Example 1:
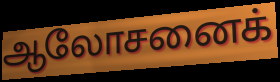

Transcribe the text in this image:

ஆலோசனைக்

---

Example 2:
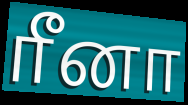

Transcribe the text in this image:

ரீனா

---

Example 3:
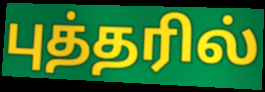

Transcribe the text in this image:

புத்தரில்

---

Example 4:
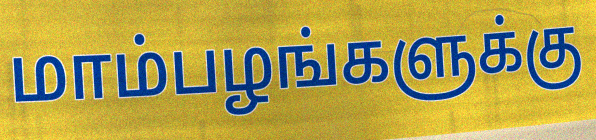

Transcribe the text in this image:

மாம்பழங்களுக்கு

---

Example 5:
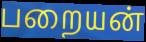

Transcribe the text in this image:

பறையன்